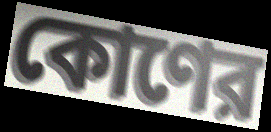
কোণের